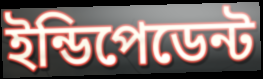
ইন্ডিপেডেন্ট